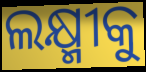
ଲକ୍ଷ୍ମୀକୁ